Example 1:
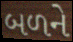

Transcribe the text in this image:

બળને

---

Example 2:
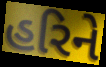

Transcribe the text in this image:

હરિને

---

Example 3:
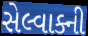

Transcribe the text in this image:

સેલ્વાક્ની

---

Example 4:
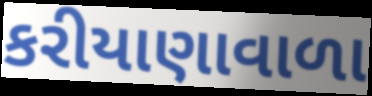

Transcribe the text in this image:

કરીયાણાવાળા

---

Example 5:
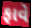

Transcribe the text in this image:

ફાવે